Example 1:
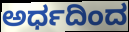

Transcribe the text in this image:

ಅರ್ಧದಿಂದ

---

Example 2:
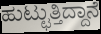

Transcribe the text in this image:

ಹುಟ್ಟುತ್ತಿದ್ದಾನೆ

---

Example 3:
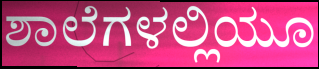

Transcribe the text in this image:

ಶಾಲೆಗಳಲ್ಲಿಯೂ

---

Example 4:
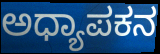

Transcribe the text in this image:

ಅಧ್ಯಾಪಕನ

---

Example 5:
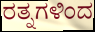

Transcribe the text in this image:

ರತ್ನಗಳಿಂದ